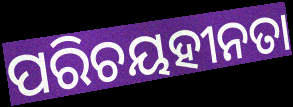
ପରିଚୟହୀନତା